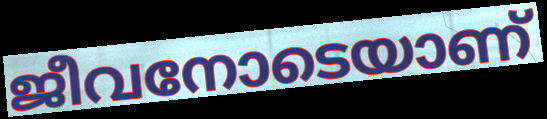
ജീവനോടെയാണ്